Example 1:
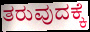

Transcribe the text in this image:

ತರುವುದಕ್ಕೆ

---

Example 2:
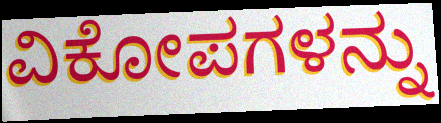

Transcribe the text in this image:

ವಿಕೋಪಗಳನ್ನು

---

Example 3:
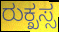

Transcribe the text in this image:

ರುಕ್ಖಸ್ಸ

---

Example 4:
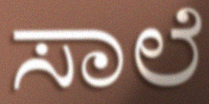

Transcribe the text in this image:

ಸಾಲೆ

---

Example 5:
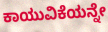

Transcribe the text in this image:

ಕಾಯುವಿಕೆಯನ್ನೇ